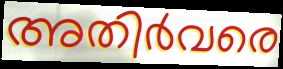
അതിർവരെ